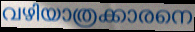
വഴിയാത്രക്കാരനെ